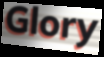
Glory